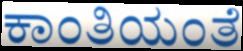
ಕಾಂತಿಯಂತೆ